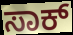
ಸಾಕ್